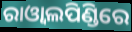
ରାଓ୍ଵାଲପିଣ୍ଡିରେ